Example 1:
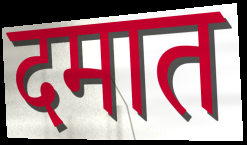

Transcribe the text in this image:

दमात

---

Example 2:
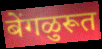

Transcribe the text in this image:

बेंगळुरूत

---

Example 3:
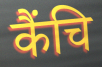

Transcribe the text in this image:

कैंचि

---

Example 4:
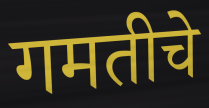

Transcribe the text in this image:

गमतीचे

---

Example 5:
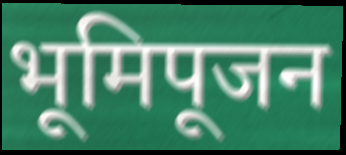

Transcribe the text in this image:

भूमिपूजन